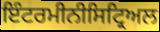
ਇੰਟਰਮੀਨੀਸਿਟ੍ਰਿਅਲ